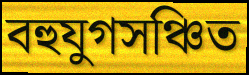
বহুযুগসঞ্চিত